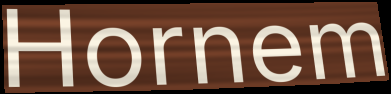
Hornem